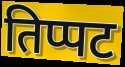
तिप्पट